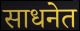
साधनेत